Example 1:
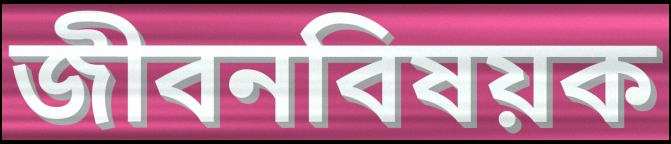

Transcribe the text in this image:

জীবনবিষয়ক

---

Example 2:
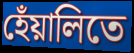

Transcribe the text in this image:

হেঁয়ালিতে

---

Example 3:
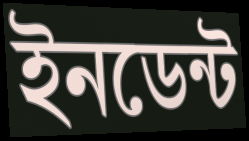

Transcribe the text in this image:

ইনডেন্ট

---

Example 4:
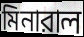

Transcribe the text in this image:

মিনারাল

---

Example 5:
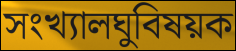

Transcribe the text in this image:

সংখ্যালঘুবিষয়ক